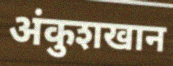
अंकुशखान